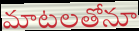
మాటలతోనూ